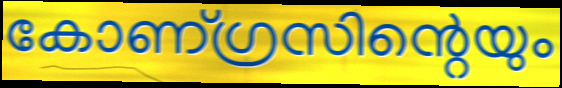
കോണ്ഗ്രസിന്റെയും